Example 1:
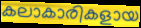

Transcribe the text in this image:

കലാകാരികളായ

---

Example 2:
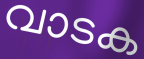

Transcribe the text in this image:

വാടക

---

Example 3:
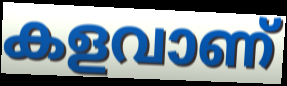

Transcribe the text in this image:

കളവാണ്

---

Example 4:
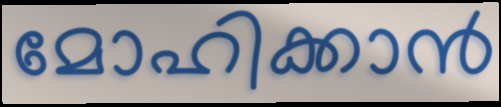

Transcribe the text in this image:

മോഹിക്കാൻ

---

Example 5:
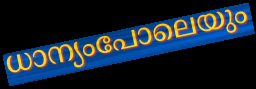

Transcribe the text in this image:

ധാന്യംപോലെയും